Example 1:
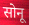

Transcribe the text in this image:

सोनू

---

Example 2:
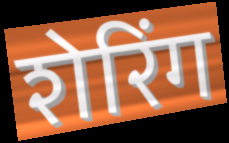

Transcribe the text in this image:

शेरिंग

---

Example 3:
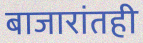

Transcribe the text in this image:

बाजारांतही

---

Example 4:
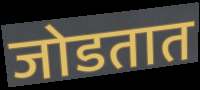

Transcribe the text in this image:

जोडतात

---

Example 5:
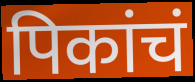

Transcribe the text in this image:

पिकांचं